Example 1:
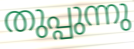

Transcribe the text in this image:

തുപ്പുന്നു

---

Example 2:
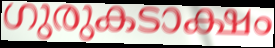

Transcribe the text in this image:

ഗുരുകടാക്ഷം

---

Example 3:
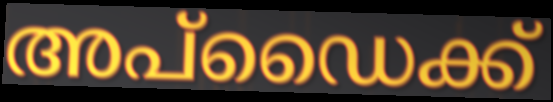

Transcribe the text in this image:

അപ്ഡൈക്ക്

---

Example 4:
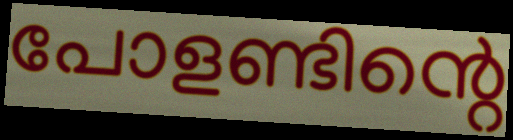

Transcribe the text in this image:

പോളണ്ടിന്റെ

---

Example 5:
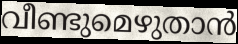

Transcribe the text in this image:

വീണ്ടുമെഴുതാൻ